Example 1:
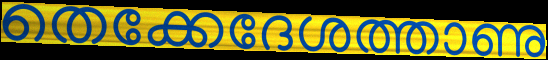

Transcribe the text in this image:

തെക്കേദേശത്താണു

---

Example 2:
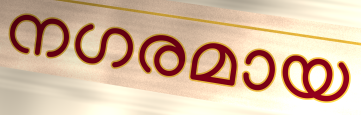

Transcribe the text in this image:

നഗരമായ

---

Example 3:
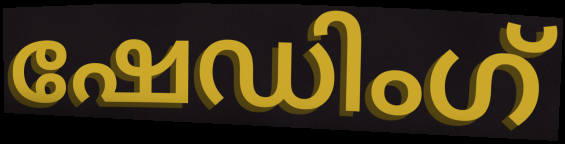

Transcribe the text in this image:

ഷേഡിംഗ്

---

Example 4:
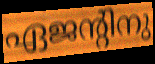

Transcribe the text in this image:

ഏജന്റിനു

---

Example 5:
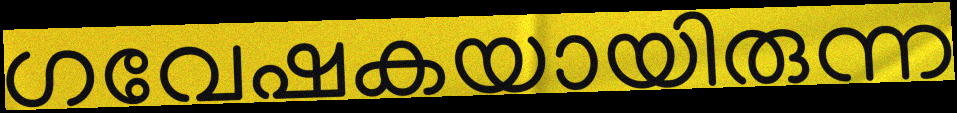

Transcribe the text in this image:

ഗവേഷകയായിരുന്ന